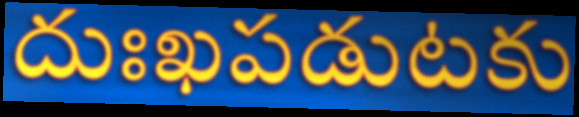
దుఃఖపడుటకు